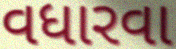
વધારવા